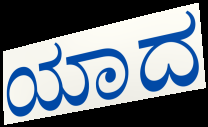
ಯಾದ